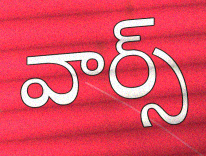
వార్స్